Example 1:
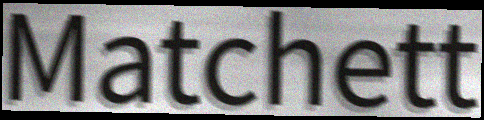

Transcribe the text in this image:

Matchett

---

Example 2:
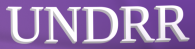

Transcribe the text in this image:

UNDRR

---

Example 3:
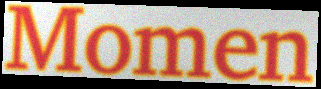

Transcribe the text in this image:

Momen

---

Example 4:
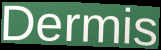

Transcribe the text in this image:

Dermis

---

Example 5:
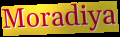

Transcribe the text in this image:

Moradiya